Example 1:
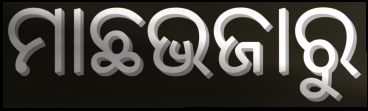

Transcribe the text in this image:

ମାଛଭଜାରୁ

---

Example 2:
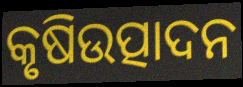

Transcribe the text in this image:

କୃଷିଉତ୍ପାଦନ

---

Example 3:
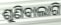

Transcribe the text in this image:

ଶୁଣିବାଲାଗି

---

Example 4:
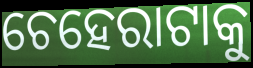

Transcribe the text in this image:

ଚେହେରାଟାକୁ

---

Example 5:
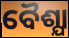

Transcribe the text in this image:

ବୈଶ୍ଯା